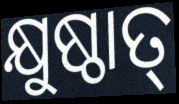
କ୍ଷୁଷ୍ଠାତ୍